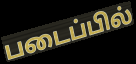
படைப்பில்